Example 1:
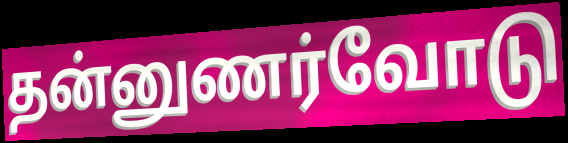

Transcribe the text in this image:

தன்னுணர்வோடு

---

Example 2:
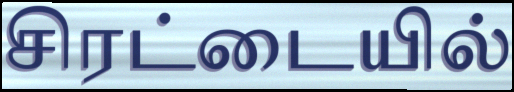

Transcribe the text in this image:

சிரட்டையில்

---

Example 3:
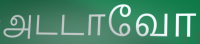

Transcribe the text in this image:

அடடாவோ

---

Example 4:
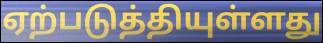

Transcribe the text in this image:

ஏற்படுத்தியுள்ளது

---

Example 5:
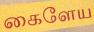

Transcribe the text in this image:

கைளேய